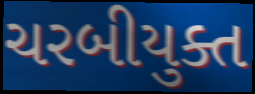
ચરબીયુક્ત